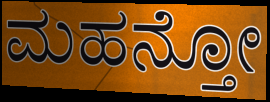
ಮಹನ್ತೋ